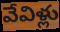
వేవిళ్లు